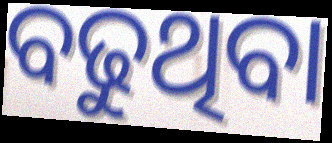
ବଢୁଥିବା